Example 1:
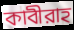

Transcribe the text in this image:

কাবীরাহ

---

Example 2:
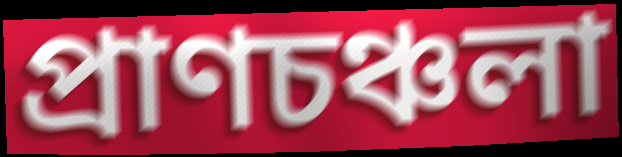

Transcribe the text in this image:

প্রাণচঞ্চলা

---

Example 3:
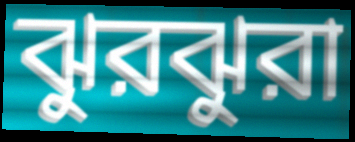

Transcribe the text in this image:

ঝুরঝুরা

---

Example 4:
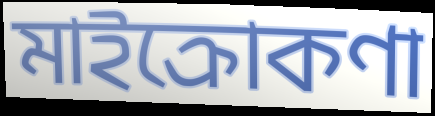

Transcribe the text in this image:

মাইক্রোকণা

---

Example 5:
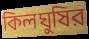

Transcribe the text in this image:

কিলঘুষির